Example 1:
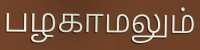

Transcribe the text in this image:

பழகாமலும்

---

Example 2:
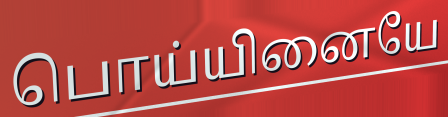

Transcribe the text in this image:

பொய்யினையே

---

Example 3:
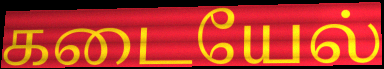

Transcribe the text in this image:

கடையேல்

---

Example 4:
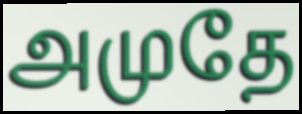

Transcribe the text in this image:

அமுதே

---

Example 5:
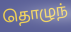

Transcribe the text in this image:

தொழுந்